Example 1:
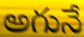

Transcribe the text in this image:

అగునే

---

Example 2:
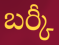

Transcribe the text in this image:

బర్కీ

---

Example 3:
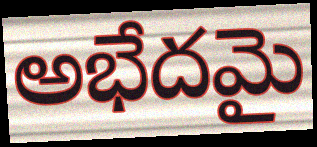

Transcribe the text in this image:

అభేదమై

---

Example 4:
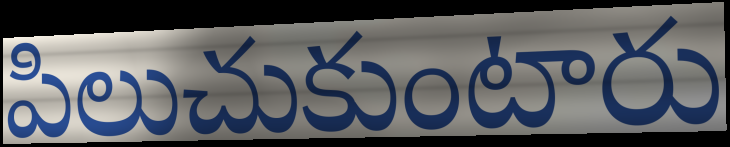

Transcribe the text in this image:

పిలుచుకుంటారు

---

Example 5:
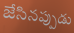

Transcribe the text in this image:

జేసినప్పుడు